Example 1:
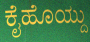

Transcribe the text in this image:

ಕೈಹೊಯ್ದು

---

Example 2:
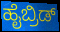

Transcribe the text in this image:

ಹೈಬ್ರಿಡ್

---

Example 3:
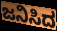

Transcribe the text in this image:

ಜನಿಸಿದ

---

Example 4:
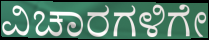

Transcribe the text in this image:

ವಿಚಾರಗಳಿಗೇ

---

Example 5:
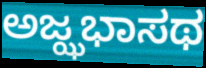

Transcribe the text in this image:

ಅಜ್ಝಭಾಸಥ